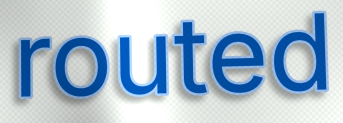
routed